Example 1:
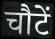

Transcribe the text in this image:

चौटें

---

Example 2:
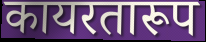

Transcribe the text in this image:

कायरतारूप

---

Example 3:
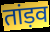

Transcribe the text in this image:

तांड़व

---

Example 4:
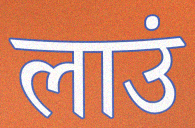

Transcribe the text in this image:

लाउं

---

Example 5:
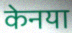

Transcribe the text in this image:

केनया